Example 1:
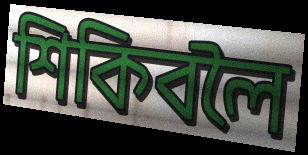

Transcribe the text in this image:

শিকিবলৈ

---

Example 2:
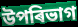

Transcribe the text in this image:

উপৰিভাগ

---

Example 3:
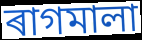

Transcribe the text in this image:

ৰাগমালা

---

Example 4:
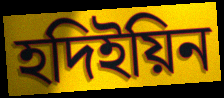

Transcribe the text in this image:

হদিইয়িন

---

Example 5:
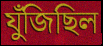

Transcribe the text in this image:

যুঁজিছিল